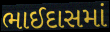
ભાઈદાસમાં